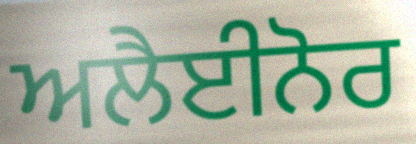
ਅਲੈਈਨੋਰ